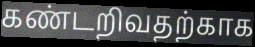
கண்டறிவதற்காக